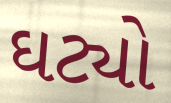
ઘટ્યો